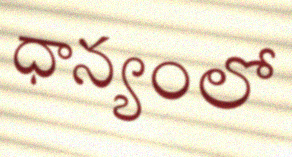
ధాన్యంలో